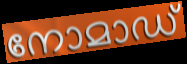
നോമാഡ്